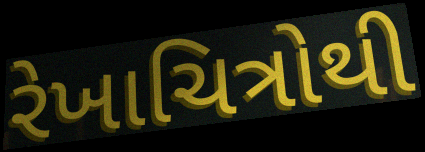
રેખાચિત્રોથી